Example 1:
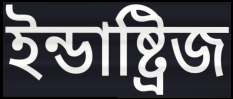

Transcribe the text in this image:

ইন্ডাষ্ট্রিজ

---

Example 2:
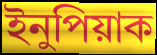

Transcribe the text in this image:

ইনুপিয়াক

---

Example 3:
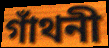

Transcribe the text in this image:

গাঁথনী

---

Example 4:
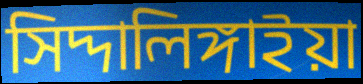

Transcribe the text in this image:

সিদ্দালিঙ্গাইয়া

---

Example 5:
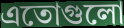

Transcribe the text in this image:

এতোগুলো